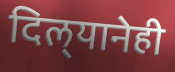
दिल्यानेही